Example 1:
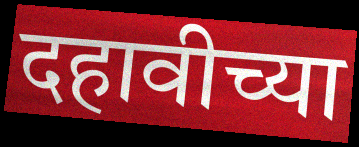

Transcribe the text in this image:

दहावीच्या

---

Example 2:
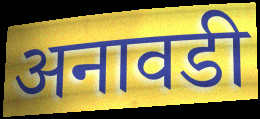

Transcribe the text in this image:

अनावडी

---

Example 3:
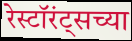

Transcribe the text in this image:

रेस्टॉरंट्सच्या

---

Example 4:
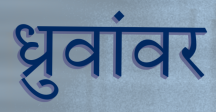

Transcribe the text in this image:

ध्रुवांवर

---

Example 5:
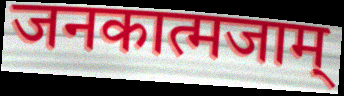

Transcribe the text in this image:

जनकात्मजाम्